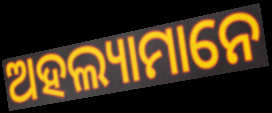
ଅହଲ୍ୟାମାନେ